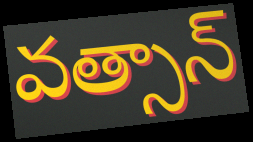
వత్సాన్